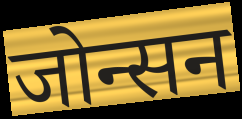
जोन्सन